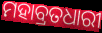
ମହାବ୍ରତଧାରୀ